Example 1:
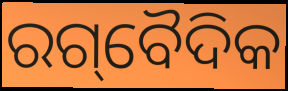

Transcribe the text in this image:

ରଗ୍‌ବୈଦିକ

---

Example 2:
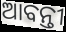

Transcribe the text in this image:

ଆବନ୍ତୀ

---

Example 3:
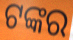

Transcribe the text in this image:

ଟଙ୍କର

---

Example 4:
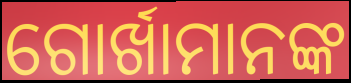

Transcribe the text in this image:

ଗୋର୍ଖାମାନଙ୍କ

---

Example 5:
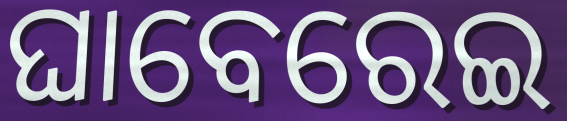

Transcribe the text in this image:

ଘାବେରେଇ